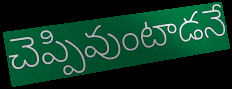
చెప్పివుంటాడనే